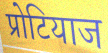
प्रोटियाज